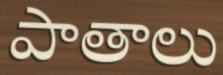
పాతాలు